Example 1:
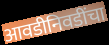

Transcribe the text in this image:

आवडीनिवडींचा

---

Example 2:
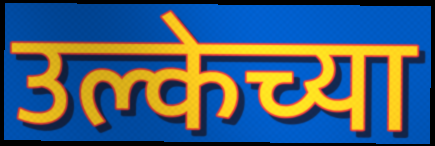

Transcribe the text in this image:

उल्केच्या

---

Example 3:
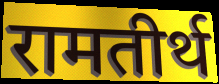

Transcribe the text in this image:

रामतीर्थ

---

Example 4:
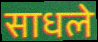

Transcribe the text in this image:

साधले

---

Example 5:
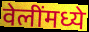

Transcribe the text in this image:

वेलींमध्ये